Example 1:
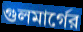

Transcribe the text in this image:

গুলমার্গের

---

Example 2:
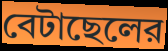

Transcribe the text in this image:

বেটাছেলের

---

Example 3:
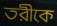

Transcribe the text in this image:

তরীকে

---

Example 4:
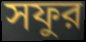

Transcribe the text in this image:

সফুর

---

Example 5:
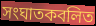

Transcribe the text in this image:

সংঘাতকবলিত